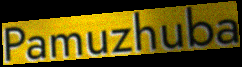
Pamuzhuba